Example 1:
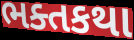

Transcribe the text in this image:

ભક્તકથા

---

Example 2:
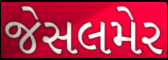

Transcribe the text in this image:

જેસલમેર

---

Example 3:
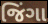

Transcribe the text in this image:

જિંગા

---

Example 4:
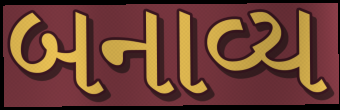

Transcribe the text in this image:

બનાવ્ય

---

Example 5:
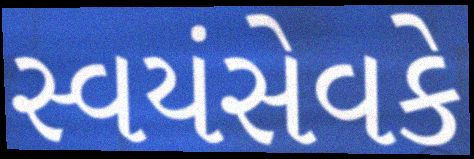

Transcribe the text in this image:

સ્વયંસેવકે